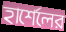
হার্শেলের